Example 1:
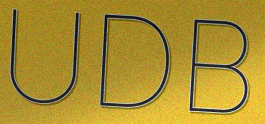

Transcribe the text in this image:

UDB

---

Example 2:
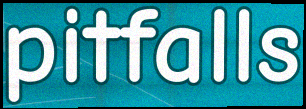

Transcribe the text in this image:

pitfalls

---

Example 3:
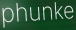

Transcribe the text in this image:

phunke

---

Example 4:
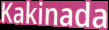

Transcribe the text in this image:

Kakinada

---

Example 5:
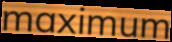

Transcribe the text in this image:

maximum